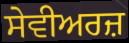
ਸੇਵੀਅਰਜ਼